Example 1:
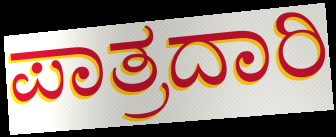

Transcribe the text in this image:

ಪಾತ್ರದಾರಿ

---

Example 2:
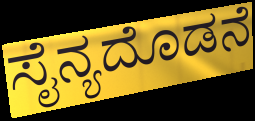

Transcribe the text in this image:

ಸೈನ್ಯದೊಡನೆ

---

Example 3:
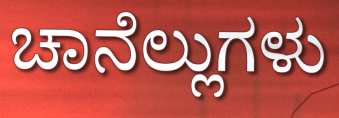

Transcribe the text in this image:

ಚಾನೆಲ್ಲುಗಳು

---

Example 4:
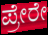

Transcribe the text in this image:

ಪ್ರೇರೇ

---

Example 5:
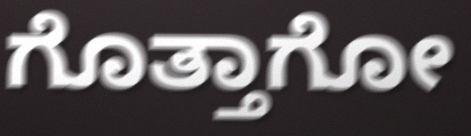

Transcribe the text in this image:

ಗೊತ್ತಾಗೋ